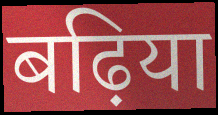
बढ़िया